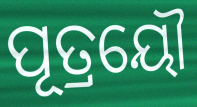
ପୂତ୍ରୟୌ